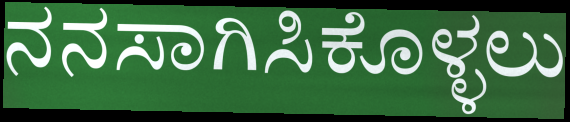
ನನಸಾಗಿಸಿಕೊಳ್ಳಲು